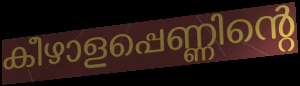
കീഴാളപ്പെണ്ണിന്റെ